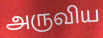
அருவிய